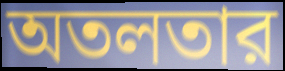
অতলতার